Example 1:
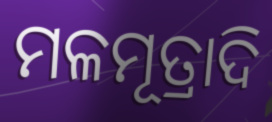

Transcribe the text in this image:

ମଳମୂତ୍ରାଦି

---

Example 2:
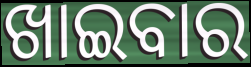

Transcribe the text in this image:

ଖାଇବାର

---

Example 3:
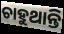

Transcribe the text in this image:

ଚାହୁଥାନ୍ତି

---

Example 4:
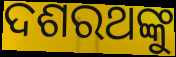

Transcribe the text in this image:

ଦଶରଥଙ୍କୁ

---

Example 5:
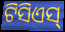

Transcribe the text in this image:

ଟିସିଏସ୍